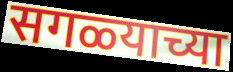
सगळ्याच्या